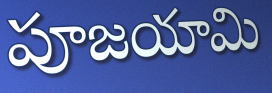
పూజయామి